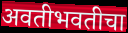
अवतीभवतीचा